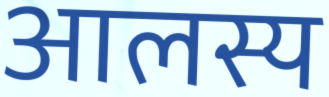
आलस्‍य